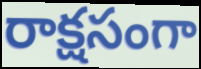
రాక్షసంగా